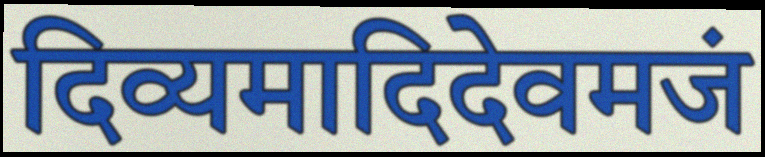
दिव्यमादिदेवमजं